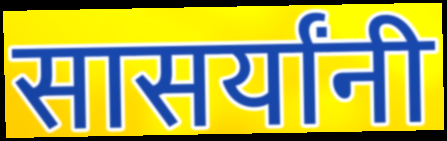
सासर्यांनी